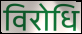
विरोधि